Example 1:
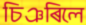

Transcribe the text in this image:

চিঞৰিলে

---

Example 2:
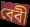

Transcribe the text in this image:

বেবী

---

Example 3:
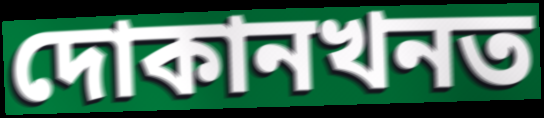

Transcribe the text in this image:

দোকানখনত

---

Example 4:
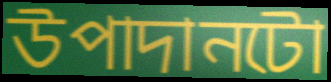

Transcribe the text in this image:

উপাদানটো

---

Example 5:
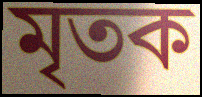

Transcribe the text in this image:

মৃতক